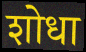
शोधा